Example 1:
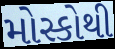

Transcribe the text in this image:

મોસ્કોથી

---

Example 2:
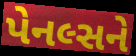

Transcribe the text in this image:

પેનલ્સને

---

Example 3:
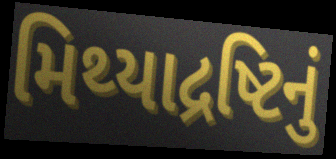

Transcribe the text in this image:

મિથ્યાદ્રષ્ટિનું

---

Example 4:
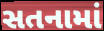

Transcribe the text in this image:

સતનામાં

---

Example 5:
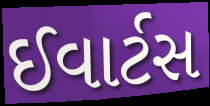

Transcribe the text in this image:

ઈવાર્ટસ